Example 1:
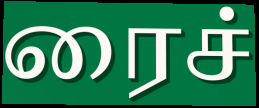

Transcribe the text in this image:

ரைச்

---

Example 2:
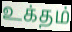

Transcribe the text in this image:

உக்தம்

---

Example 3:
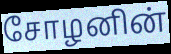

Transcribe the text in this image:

சோழனின்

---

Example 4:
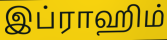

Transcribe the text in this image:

இப்ராஹிம்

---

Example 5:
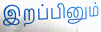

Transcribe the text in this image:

இறப்பினும்